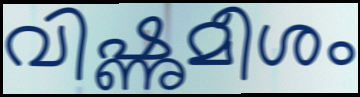
വിഷ്ണുമീശം